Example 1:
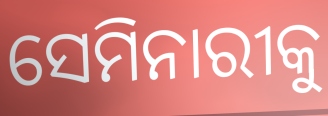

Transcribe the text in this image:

ସେମିନାରୀକୁ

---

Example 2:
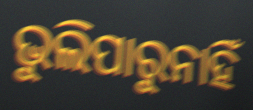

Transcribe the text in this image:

ଭୁଲିପାରୁନାହିଁ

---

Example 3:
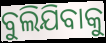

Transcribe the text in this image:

ବୁଲିଯିବାକୁ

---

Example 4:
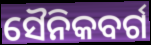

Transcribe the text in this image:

ସୈନିକବର୍ଗ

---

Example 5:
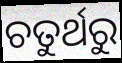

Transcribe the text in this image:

ଚତୁର୍ଥରୁ